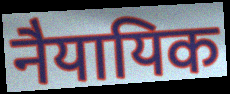
नैयायिक